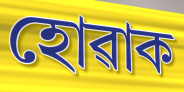
হোৱাক